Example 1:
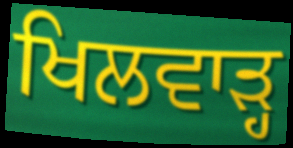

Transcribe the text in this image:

ਖਿਲਵਾੜ੍ਹ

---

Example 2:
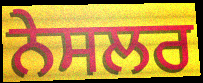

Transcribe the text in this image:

ਨੇਸਲਰ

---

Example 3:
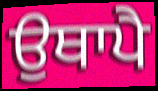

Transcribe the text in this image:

ਉਥਾਪੈ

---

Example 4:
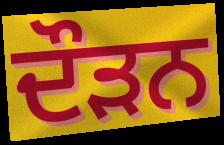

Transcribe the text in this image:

ਦੌਡ਼ਨ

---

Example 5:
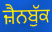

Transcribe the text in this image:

ਜ਼ੈਨਬੁੱਕ